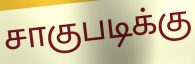
சாகுபடிக்கு